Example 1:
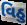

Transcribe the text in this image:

વિઠુ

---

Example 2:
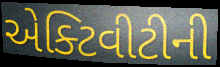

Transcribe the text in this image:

એક્ટિવીટીની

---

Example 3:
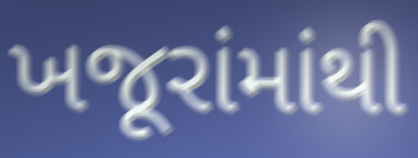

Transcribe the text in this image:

ખજૂરાંમાંથી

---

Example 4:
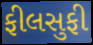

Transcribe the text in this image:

ફીલસુફી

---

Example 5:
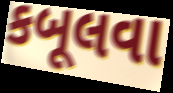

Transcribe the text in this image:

કબૂલવા